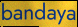
bandaya